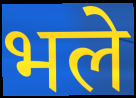
भले